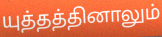
யுத்தத்தினாலும்